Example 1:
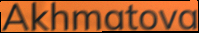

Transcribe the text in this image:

Akhmatova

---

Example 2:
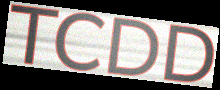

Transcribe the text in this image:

TCDD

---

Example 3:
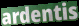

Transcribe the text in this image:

ardentis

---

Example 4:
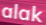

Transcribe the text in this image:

alak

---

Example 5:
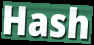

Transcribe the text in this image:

Hash